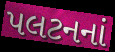
પલટનનાં